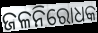
ଜଳନିରୋଧକ